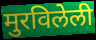
मुरविलेली